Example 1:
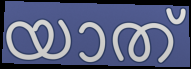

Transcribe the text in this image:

യാത്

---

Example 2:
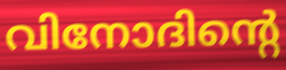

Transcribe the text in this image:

വിനോദിന്റെ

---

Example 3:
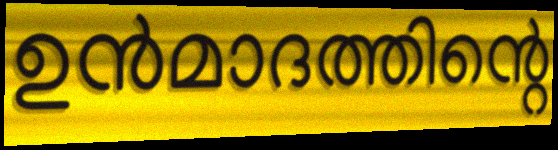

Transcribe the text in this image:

ഉൻമാദത്തിന്റെ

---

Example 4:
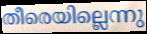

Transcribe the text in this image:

തീരെയില്ലെന്നു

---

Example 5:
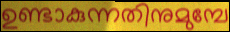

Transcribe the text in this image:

ഉണ്ടാകുന്നതിനുമുമ്പേ